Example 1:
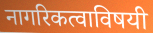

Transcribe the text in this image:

नागरिकत्वाविषयी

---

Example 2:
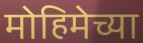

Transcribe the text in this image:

मोहिमेच्या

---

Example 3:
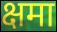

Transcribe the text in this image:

क्षमा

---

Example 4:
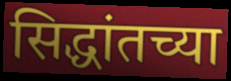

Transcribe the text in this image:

सिद्धांतच्या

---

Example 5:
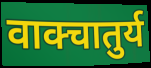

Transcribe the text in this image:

वाक्चातुर्य